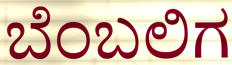
ಬೆಂಬಲಿಗ